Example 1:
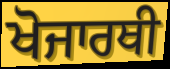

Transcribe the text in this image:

ਖੋਜਾਰਥੀ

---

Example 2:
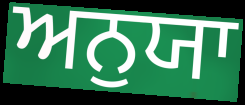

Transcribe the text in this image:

ਅਨੁਯਾ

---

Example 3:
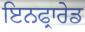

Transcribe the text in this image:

ਇਨਫ੍ਰਾਰੇਡ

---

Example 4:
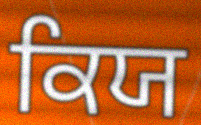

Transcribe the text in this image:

ਕਿਯ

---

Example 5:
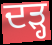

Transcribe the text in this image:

ਦੜ੍ਹ